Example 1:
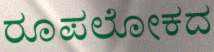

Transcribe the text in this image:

ರೂಪಲೋಕದ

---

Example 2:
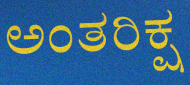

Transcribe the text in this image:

ಅಂತರಿಕ್ಷ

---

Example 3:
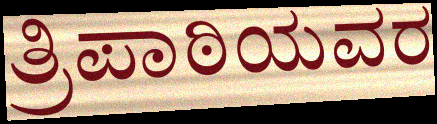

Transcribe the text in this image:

ತ್ರಿಪಾಠಿಯವರ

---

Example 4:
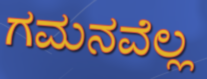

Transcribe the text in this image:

ಗಮನವೆಲ್ಲ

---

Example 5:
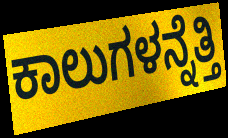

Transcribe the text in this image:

ಕಾಲುಗಳನ್ನೆತ್ತಿ